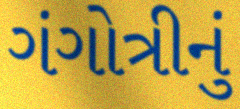
ગંગોત્રીનું